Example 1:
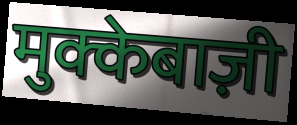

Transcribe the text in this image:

मुक्केबाज़ी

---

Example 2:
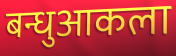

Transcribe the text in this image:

बन्धुआकला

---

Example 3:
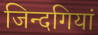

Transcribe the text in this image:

जिन्दगियां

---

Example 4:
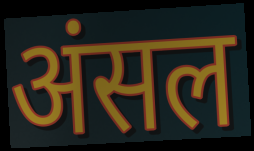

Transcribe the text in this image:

अंसल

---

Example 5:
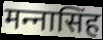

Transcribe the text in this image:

मन्नासिंह